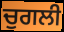
ਚੁਗਲੀ